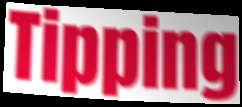
Tipping